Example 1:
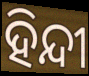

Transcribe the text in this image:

ହିନ୍ଦୀ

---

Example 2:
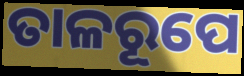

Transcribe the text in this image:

ତାଳରୂପେ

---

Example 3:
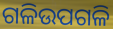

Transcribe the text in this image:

ଗଳିଉପଗଳି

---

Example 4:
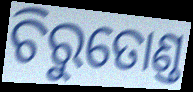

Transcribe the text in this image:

ଚିରୁତୋଣ୍ଡ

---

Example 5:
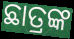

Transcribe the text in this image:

ଛାତ୍ରଙ୍କ